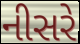
નીસરે